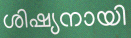
ശിഷ്യനായി